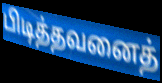
பிடித்தவனைத்